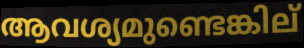
ആവശ്യമുണ്ടെങ്കില്